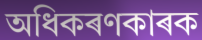
অধিকৰণকাৰক